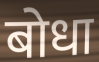
बोधा